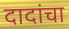
दादांचा